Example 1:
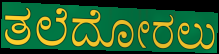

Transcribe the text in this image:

ತಲೆದೋರಲು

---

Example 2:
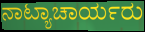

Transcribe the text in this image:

ನಾಟ್ಯಾಚಾರ್ಯರು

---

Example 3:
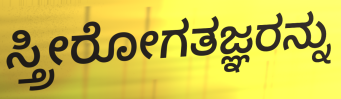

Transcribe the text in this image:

ಸ್ತ್ರೀರೋಗತಜ್ಞರನ್ನು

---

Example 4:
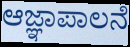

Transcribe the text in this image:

ಆಜ್ಞಾಪಾಲನೆ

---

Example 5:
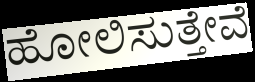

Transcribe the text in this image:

ಹೋಲಿಸುತ್ತೇವೆ